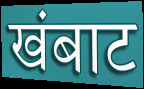
खंबाट